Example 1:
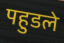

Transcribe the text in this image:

पहुडले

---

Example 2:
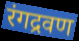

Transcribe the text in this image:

रंगद्रवण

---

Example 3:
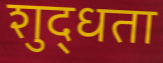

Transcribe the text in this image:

शुद्धता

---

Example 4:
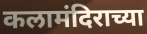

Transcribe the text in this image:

कलामंदिराच्या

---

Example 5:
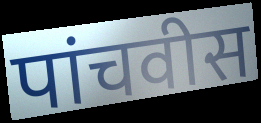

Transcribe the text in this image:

पांचवीस